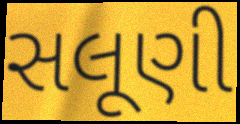
સલૂણી